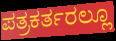
ಪತ್ರಕರ್ತರಲ್ಲೂ